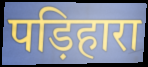
पड़िहारा